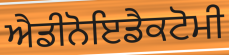
ਐਡੀਨੋਇਡੈਕਟੋਮੀ